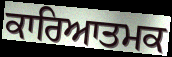
ਕਾਰਿਆਤਮਕ